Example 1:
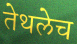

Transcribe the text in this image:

तेथलेच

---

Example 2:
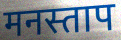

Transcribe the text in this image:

मनस्ताप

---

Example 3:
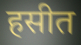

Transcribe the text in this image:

हसीत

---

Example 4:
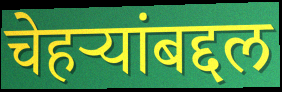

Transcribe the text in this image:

चेहऱ्यांबद्दल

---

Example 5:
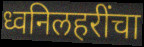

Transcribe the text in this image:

ध्वनिलहरींचा